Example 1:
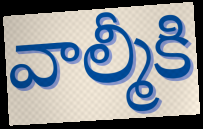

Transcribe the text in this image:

వాల్మీకి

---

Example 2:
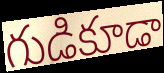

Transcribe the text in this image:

గుడికూడా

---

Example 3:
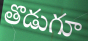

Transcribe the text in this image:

తొడుగూ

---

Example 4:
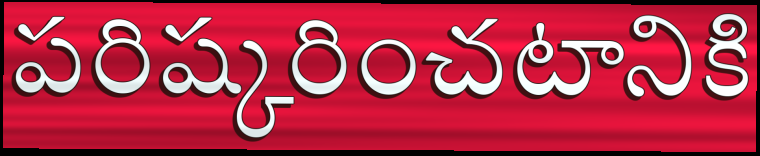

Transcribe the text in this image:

పరిష్కరించటానికి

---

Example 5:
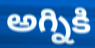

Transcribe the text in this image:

అగ్నికి